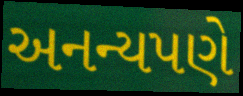
અનન્યપણે